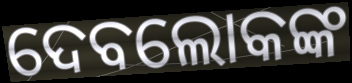
ଦେବଲୋକଙ୍କ